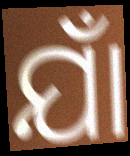
ଯାଁ